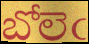
బోలెఁ